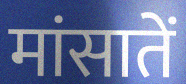
मांसातें